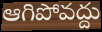
ఆగిపోవద్దు